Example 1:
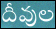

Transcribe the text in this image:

దీవుల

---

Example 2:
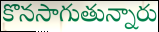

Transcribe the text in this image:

కొనసాగుతున్నారు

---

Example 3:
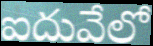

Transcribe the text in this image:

ఐదువేలో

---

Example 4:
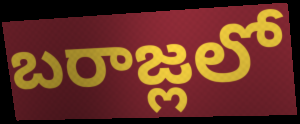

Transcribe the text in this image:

బరాజ్లలో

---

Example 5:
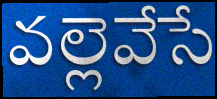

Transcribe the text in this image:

వల్లెవేసే